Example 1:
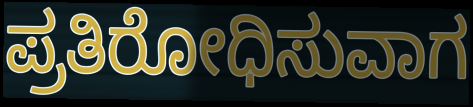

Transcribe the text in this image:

ಪ್ರತಿರೋಧಿಸುವಾಗ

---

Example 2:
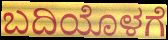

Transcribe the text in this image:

ಬದಿಯೊಳಗೆ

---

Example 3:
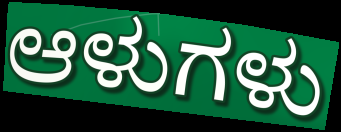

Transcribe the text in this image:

ಆಳುಗಳು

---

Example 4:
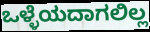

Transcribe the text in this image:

ಒಳ್ಳೆಯದಾಗಲಿಲ್ಲ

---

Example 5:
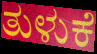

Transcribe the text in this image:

ತುಳುಕೆ